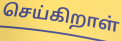
செய்கிறாள்